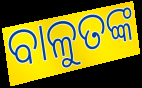
ବାଳୁତଙ୍କ